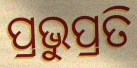
ପ୍ରଭୁପ୍ରତି